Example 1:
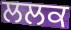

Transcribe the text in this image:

ਲਲਕ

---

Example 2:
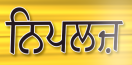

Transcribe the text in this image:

ਨਿਪਲਜ਼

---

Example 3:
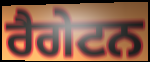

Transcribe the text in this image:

ਰੈਗੇਟਨ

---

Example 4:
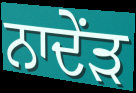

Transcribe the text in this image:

ਨਾਦੇਂੜ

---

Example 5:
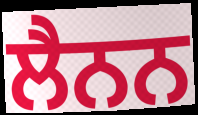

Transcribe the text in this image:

ਲੈਨਨ